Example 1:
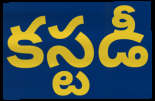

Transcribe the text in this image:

కస్టడీ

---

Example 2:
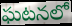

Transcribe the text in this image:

ఘటనలో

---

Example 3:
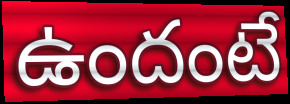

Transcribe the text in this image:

ఉందంటే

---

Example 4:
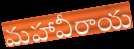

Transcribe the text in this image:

మహావీరాయ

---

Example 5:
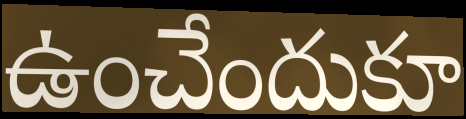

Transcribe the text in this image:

ఉంచేందుకూ